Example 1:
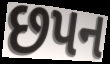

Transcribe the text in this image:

છપન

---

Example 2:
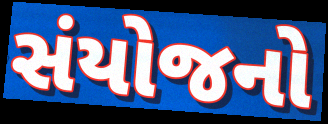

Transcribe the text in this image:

સંયોજનો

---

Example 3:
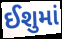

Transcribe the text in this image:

ઈશુમાં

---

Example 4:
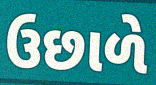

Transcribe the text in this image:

ઉછાળે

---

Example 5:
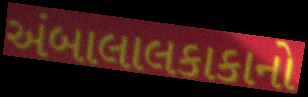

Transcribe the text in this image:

અંબાલાલકાકાનો